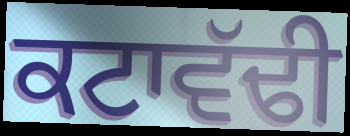
ਕਟਾਵੱਢੀ